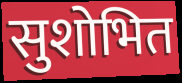
सुशोभित